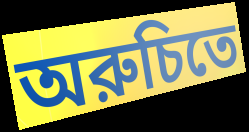
অরুচিতে